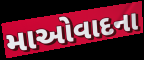
માઓવાદના